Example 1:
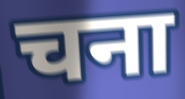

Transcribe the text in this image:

चना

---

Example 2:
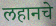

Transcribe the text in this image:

लहानचे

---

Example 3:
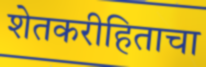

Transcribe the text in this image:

शेतकरीहिताचा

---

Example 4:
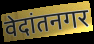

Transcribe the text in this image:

वेदांतनगर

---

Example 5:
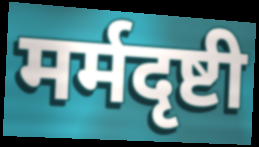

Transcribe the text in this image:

मर्मदृष्टी